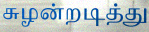
சுழன்றடித்து